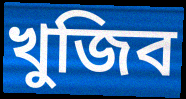
খুজিব